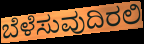
ಬೆಳೆಸುವುದಿರಲಿ